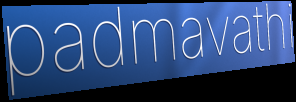
padmavathi